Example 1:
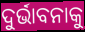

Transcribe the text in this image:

ଦୁର୍ଭାବନାକୁ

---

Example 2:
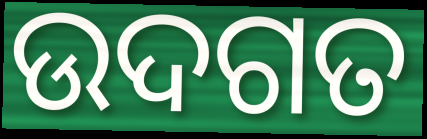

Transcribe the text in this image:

ଉଦଗତ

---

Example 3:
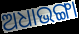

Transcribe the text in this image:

ଅଧାଭଙ୍ଗା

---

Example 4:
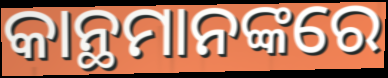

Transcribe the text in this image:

କାନ୍ଥମାନଙ୍କରେ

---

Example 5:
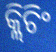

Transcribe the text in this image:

କ୍ଲିଚିଂ